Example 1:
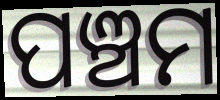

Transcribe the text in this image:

ପଞ୍ଚମ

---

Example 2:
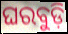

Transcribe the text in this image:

ଘରବୁଡ଼ି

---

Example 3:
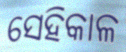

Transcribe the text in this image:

ସେହିକାଳ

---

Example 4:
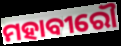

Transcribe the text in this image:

ମହାବୀରୌ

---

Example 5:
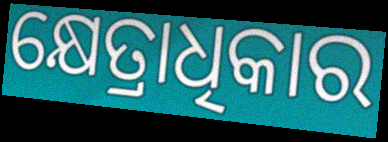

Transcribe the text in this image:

କ୍ଷେତ୍ରାଧିକାର